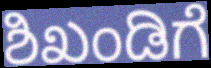
ಶಿಖಂಡಿಗೆ